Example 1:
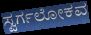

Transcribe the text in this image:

ಸ್ವರ್ಗಲೋಕವ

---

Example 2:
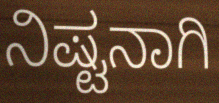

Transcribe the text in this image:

ನಿಷ್ಟನಾಗಿ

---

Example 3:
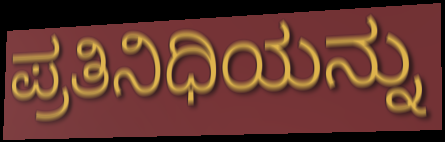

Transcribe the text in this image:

ಪ್ರತಿನಿಧಿಯನ್ನು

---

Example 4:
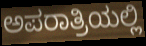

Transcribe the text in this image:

ಅಪರಾತ್ರಿಯಲ್ಲಿ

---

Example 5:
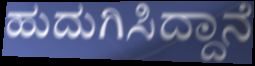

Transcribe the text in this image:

ಹುದುಗಿಸಿದ್ದಾನೆ